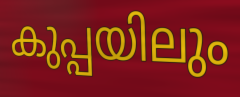
കുപ്പയിലും